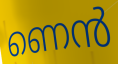
ണെൻ